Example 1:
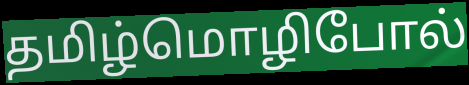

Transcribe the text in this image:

தமிழ்மொழிபோல்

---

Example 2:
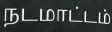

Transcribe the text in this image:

நடமாட்டம்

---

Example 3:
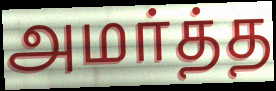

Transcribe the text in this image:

அமர்த்த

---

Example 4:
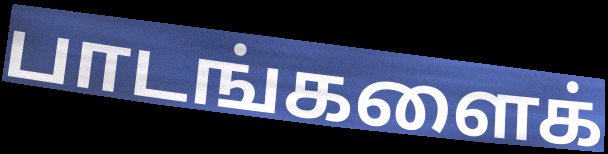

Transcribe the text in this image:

பாடங்களைக்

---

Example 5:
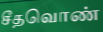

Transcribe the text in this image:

சீதவொண்